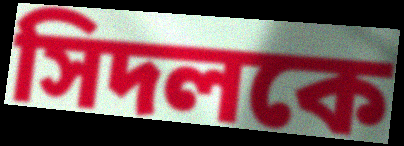
সিদলকে